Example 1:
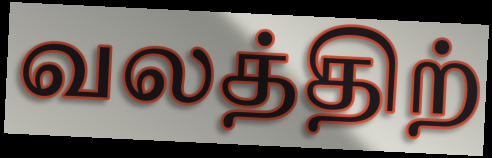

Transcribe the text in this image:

வலத்திற்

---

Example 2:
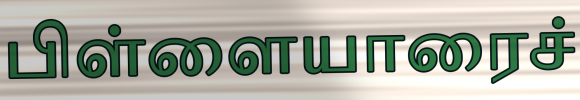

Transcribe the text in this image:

பிள்ளையாரைச்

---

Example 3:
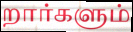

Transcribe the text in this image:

றார்களும்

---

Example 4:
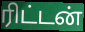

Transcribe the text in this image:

ரிட்டன்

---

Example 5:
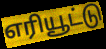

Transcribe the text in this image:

எரியூட்டு